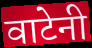
वाटेनी